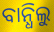
ବାନ୍ଧିଲୁ